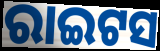
ରାଇଟସ